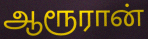
ஆரூரான்